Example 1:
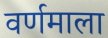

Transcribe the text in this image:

वर्णमाला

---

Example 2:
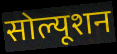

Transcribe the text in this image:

सोल्‍यूशन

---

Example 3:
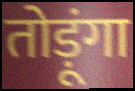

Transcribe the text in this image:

तोड़ूंगा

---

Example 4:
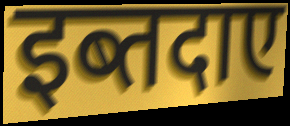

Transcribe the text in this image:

इब्तदाए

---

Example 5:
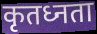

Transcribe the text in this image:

कृतध्नता